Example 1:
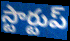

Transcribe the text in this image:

స్టార్టుప్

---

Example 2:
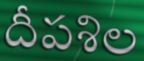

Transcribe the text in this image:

దీపశిల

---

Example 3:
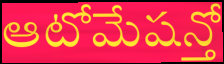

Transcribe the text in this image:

ఆటోమేషన్తో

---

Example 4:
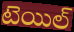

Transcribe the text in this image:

టెయిల్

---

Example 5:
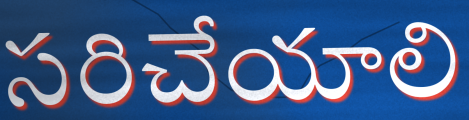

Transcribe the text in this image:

సరిచేయాలి